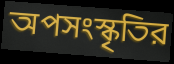
অপসংস্কৃতির